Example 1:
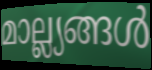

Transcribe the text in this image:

മാല്ല്യങ്ങൾ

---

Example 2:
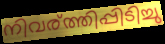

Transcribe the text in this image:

നിവര്ത്തിപ്പിടിച്ചു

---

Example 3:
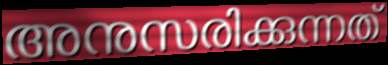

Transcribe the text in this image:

അനുസരിക്കുന്നത്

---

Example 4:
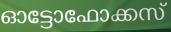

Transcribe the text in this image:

ഓട്ടോഫോക്കസ്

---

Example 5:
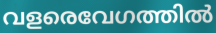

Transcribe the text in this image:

വളരെവേഗത്തിൽ